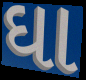
ઘા